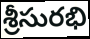
శ్రీసురభి